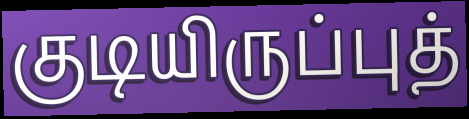
குடியிருப்புத்